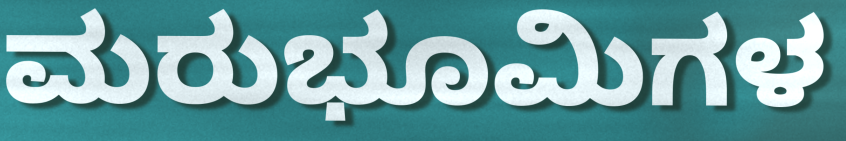
ಮರುಭೂಮಿಗಳ